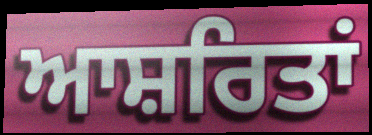
ਆਸ਼ਰਿਤਾਂ